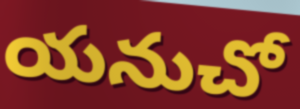
యనుచో